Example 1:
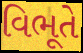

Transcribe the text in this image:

વિભૂતે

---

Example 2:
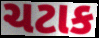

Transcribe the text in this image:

ચટાક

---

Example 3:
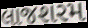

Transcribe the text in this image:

લાજશરમ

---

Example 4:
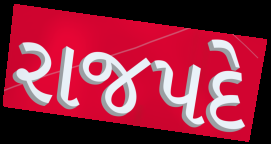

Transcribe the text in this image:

રાજપદે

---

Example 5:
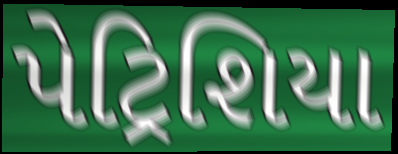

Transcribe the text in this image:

પેટ્રિશિયા